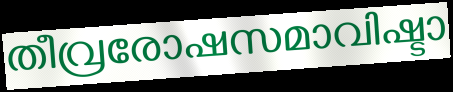
തീവ്രരോഷസമാവിഷ്ടാ